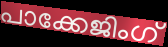
പാക്കേജിംഗ്